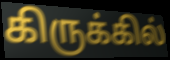
கிருக்கில்